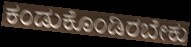
ಕಂಡುಕೊಂಡಿರಬೇಕು